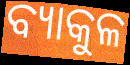
ବ୍ୟାକୁଳ